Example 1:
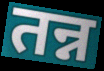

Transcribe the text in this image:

तन्न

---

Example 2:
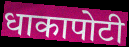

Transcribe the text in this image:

धाकापोटी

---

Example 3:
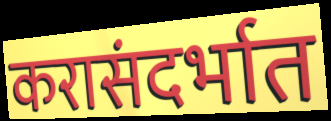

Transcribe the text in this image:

करासंदर्भात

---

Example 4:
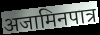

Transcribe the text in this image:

अजामिनपात्र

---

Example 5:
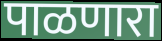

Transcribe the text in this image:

पाळणारा